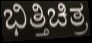
ಭಿತ್ತಿಚಿತ್ರ